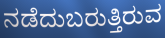
ನಡೆದುಬರುತ್ತಿರುವ